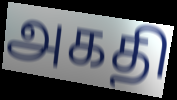
அகதி